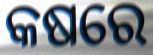
କଷରେ